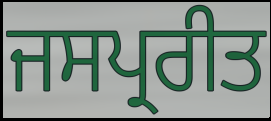
ਜਸਪ੍ਰਰੀਤ